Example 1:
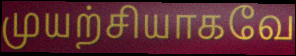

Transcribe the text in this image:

முயற்சியாகவே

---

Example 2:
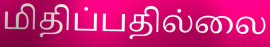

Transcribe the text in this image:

மிதிப்பதில்லை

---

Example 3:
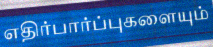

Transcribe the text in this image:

எதிர்பார்ப்புகளையும்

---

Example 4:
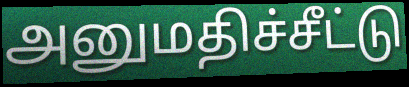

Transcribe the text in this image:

அனுமதிச்சீட்டு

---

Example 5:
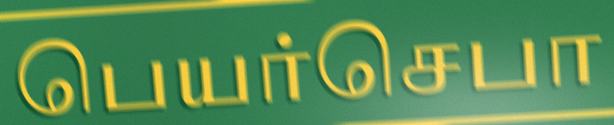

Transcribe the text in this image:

பெயர்செபா